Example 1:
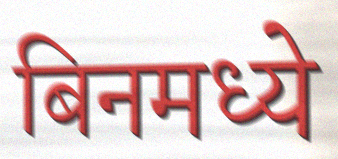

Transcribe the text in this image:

बिनमध्ये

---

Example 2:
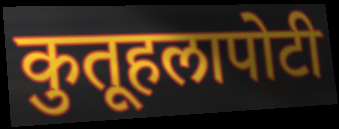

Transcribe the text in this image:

कुतूहलापोटी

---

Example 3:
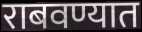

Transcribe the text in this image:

राबवण्यात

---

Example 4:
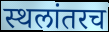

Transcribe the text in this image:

स्थलांतरच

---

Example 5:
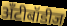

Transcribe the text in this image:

अँटीबॉडीज